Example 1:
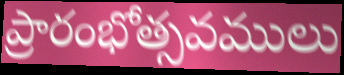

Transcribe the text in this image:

ప్రారంభోత్సవములు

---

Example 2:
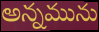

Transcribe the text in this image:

అన్నమును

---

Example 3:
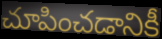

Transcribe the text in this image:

చూపించడానికీ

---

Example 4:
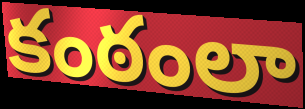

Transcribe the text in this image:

కంఠంలా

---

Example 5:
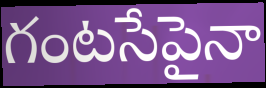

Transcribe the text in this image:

గంటసేపైనా